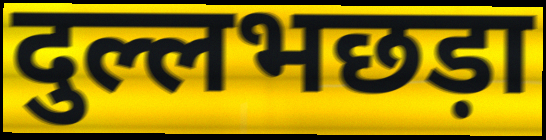
दुल्लभछड़ा